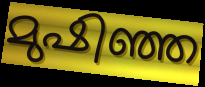
മുഷിഞ്ഞ